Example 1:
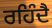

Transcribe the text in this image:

ਰਹਿੰਦੈ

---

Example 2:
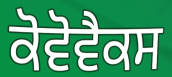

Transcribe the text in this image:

ਕੋਵੋਵੈਕਸ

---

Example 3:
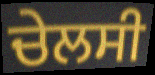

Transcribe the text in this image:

ਚੇਲਸੀ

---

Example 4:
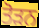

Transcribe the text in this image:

ਤੋੜਨ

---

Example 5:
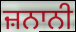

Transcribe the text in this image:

ਜ਼ਨਾਨੀ